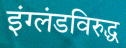
इंग्लंडविरुद्ध